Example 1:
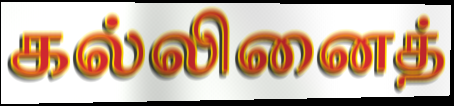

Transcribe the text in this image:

கல்லினைத்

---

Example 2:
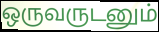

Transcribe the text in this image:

ஒருவருடனும்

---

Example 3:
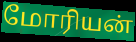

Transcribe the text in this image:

மோரியன்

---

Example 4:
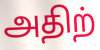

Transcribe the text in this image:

அதிற்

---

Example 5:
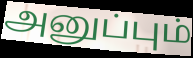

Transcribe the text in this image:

அனுப்பும்